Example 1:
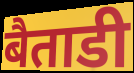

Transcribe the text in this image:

बैताडी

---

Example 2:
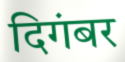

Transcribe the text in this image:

दिगंबर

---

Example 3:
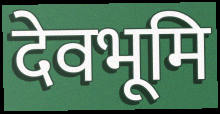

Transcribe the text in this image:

देवभूमि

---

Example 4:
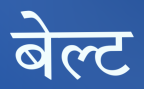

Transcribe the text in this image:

बेल्ट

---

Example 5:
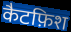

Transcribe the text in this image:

कैटफ़िश